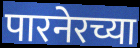
पारनेरच्या